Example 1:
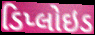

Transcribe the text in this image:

ડિપ્લોઇડ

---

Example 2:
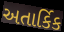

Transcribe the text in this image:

અતાર્કિક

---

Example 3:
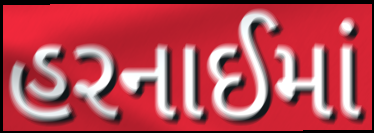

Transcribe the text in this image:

હરનાઈમાં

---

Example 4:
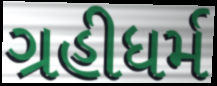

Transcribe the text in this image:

ગ્રહીધર્મ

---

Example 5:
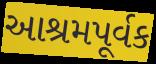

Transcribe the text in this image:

આશ્રમપૂર્વક